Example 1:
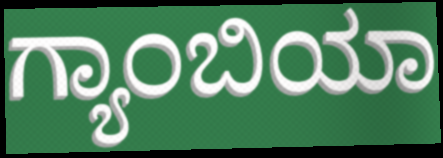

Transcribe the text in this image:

ಗ್ಯಾಂಬಿಯಾ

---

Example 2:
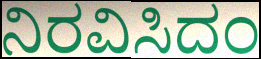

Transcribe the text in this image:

ನಿರವಿಸಿದಂ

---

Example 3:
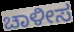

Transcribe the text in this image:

ಚಾಳೀಸ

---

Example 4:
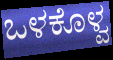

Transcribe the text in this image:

ಒಳಕೊಳ್ವ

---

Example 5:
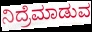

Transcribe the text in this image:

ನಿದ್ರೆಮಾಡುವ